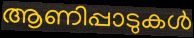
ആണിപ്പാടുകൾ